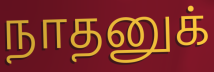
நாதனுக்